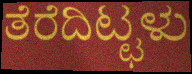
ತೆರೆದಿಟ್ಟಳು